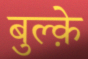
बुल्क़े